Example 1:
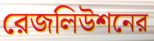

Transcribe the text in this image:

রেজলিউশনের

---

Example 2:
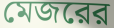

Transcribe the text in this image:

মেজরের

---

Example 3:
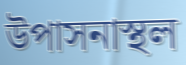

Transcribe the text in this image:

উপাসনাস্থল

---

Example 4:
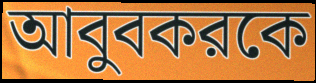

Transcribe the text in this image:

আবুবকরকে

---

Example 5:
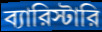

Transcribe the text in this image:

ব্যারিস্টারি